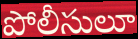
పోలీసులూ